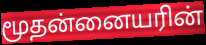
மூதன்னையரின்